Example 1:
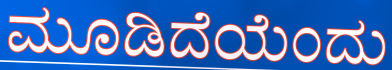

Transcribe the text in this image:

ಮೂಡಿದೆಯೆಂದು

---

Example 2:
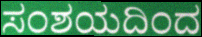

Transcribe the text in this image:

ಸಂಶಯದಿಂದ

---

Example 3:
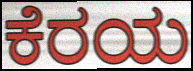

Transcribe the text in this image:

ಕೆರಯ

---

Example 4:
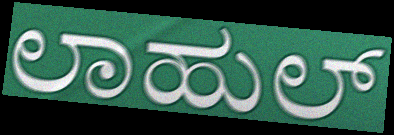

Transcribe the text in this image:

ಲಾಹುಲ್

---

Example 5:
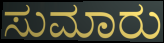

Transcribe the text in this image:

ಸುಮಾರು